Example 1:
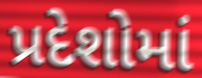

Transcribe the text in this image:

પ્રદેશોમાં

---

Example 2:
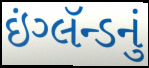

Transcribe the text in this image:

ઇંગ્લૅન્ડનું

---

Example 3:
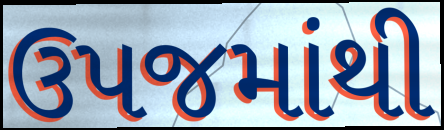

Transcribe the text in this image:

ઉપજમાંથી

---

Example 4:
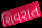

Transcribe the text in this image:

શિવરાત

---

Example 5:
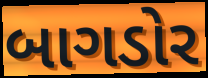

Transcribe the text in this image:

બાગડોર